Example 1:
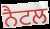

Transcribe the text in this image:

ਨੈਟਲ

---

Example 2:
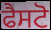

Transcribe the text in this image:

ਫੈਸਟੋ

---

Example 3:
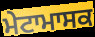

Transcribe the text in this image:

ਮੇਟਾਮਾਸਕ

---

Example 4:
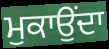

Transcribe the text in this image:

ਮੁਕਾਉਂਦਾ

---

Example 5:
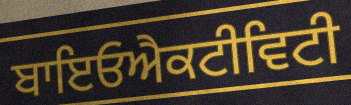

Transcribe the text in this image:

ਬਾਇਓਐਕਟੀਵਿਟੀ